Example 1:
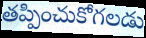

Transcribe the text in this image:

తప్పించుకోగలడు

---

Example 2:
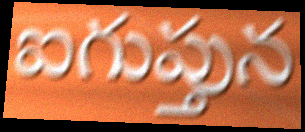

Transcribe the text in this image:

ఐగుప్తున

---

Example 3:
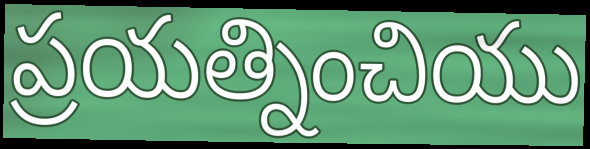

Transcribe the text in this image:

ప్రయత్నించియు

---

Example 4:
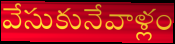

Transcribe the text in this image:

వేసుకునేవాళ్లం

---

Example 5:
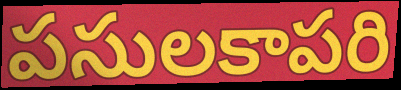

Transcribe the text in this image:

పసులకాపరి